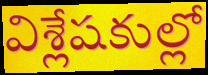
విశ్లేషకుల్లో